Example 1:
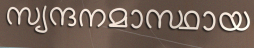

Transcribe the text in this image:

സ്യന്ദനമാസ്ഥായ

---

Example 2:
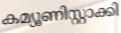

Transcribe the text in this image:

കമ്യൂണിസ്റ്റാക്കി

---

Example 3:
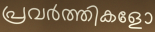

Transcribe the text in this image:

പ്രവർത്തികളോ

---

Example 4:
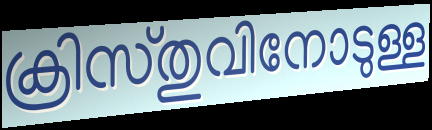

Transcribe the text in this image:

ക്രിസ്തുവിനോടുള്ള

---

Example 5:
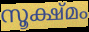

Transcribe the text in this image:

സൂക്ഷ്‌മം